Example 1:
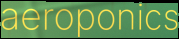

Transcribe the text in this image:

aeroponics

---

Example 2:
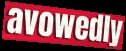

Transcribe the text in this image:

avowedly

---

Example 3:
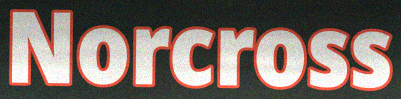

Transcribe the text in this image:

Norcross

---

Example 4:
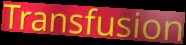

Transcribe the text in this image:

Transfusion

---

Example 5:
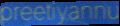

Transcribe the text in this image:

preetiyannu